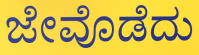
ಜೇವೊಡೆದು